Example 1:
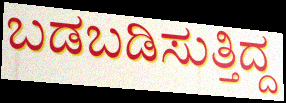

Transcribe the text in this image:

ಬಡಬಡಿಸುತ್ತಿದ್ದ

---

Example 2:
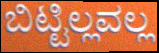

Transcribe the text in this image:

ಬಿಟ್ಟಿಲ್ಲವಲ್ಲ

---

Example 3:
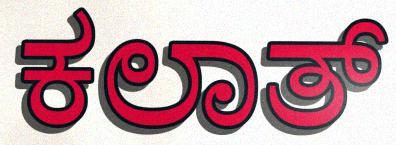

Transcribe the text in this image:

ಕಲಾತ್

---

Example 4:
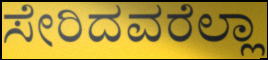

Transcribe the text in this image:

ಸೇರಿದವರೆಲ್ಲಾ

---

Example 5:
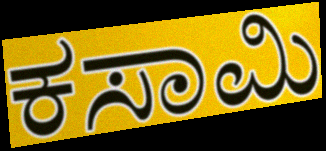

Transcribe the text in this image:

ಕಸಾಮಿ